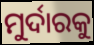
ମୁର୍ଦାରକୁ